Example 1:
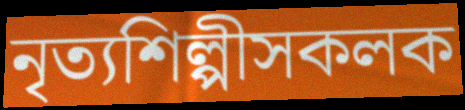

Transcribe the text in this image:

নৃত্যশিল্পীসকলক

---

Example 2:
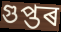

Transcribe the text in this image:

গুপ্তৰ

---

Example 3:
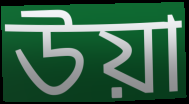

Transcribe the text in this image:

উয়া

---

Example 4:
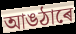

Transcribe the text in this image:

আঙঠাৰে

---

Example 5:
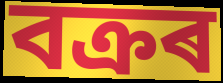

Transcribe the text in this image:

বক্ৰৰ